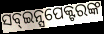
ସବ୍ଇନ୍ସପେକ୍ଟରଙ୍କ